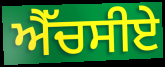
ਐੱਚਸੀਏ